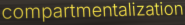
compartmentalization